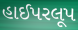
હાઈપરલૂપ